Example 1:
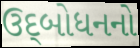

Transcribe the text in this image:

ઉદ્‌બોધનનો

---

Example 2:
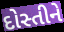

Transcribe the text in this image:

દોસ્તીને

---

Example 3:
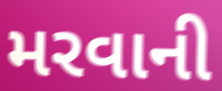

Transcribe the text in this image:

મરવાની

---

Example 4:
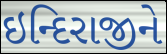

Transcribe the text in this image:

ઇન્દિરાજીને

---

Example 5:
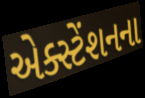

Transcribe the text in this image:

એક્સ્ટેંશનના